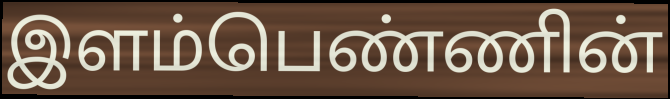
இளம்பெண்ணின்